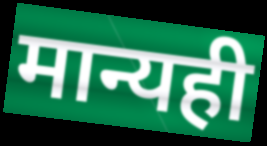
मान्यही